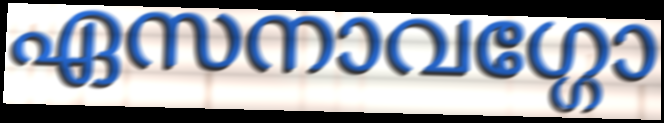
ഏസനാവഗ്ഗോ